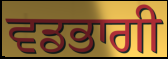
ਵਡਭਾਗੀ